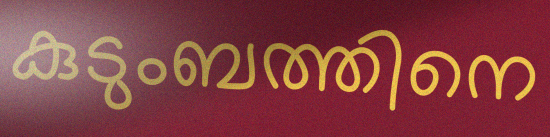
കുടുംബത്തിനെ